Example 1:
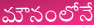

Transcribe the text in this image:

మౌనంలోనే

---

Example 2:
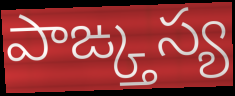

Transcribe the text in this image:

పాఙ్క్తస్య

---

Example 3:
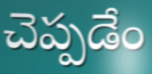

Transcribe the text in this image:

చెప్పడేం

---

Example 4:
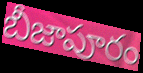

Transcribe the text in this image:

బీజాపూరం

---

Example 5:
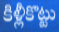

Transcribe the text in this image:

కిళ్లీకొట్టు